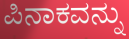
ಪಿನಾಕವನ್ನು